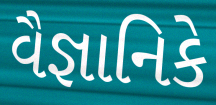
વૈજ્ઞાનિકે